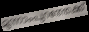
മുന്നാംപുറത്തേക്ക്